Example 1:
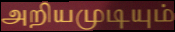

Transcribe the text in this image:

அறியமுடியும்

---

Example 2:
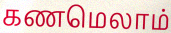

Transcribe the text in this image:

கணமெலாம்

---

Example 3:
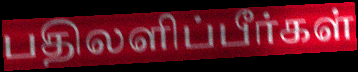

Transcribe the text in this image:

பதிலளிப்பீர்கள்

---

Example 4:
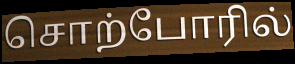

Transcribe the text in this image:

சொற்போரில்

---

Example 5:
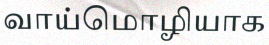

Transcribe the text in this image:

வாய்மொழியாக